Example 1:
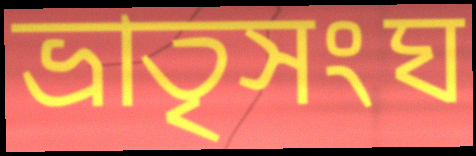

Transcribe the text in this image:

ভ্রাতৃসংঘ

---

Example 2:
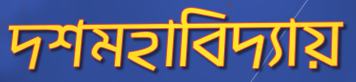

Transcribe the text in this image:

দশমহাবিদ্যায়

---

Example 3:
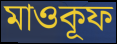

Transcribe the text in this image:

মাওকূফ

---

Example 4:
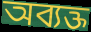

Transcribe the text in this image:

অব্যক্ত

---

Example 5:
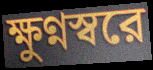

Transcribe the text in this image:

ক্ষুণ্নস্বরে